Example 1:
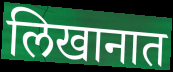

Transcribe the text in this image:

लिखानात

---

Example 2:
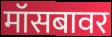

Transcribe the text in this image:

मॉसबावर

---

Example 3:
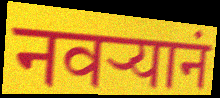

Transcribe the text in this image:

नवऱ्यानं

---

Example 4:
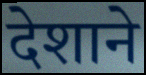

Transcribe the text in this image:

देशाने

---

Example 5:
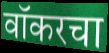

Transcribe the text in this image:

वॉकरचा